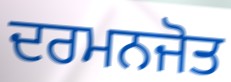
ਦਰਮਨਜੋਤ